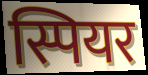
स्पियर